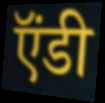
ऍंडी